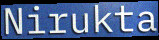
Nirukta